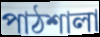
পাঠশালা